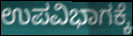
ಉಪವಿಭಾಗಕ್ಕೆ